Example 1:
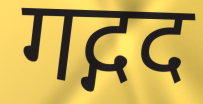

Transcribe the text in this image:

गद्गद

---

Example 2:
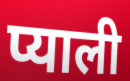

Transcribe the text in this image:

प्याली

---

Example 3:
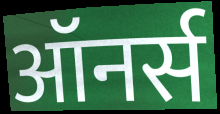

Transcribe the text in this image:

ऑनर्स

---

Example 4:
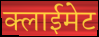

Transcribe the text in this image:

क्लाईमेट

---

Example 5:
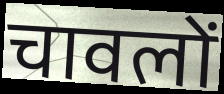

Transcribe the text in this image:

चावलों